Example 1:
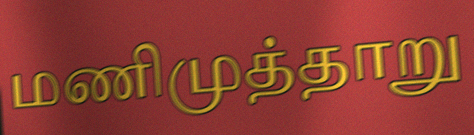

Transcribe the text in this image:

மணிமுத்தாறு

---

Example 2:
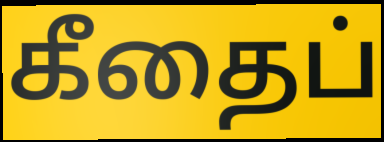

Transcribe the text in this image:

கீதைப்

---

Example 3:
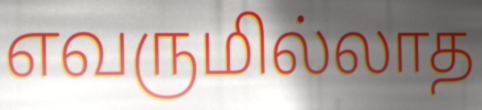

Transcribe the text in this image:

எவருமில்லாத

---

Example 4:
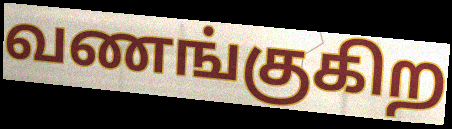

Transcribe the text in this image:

வணங்குகிற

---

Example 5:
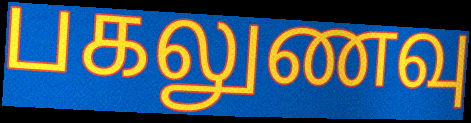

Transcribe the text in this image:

பகலுணவு